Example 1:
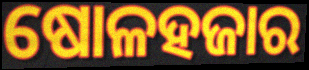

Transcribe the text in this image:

ଷୋଳହଜାର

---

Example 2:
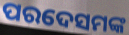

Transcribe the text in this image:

ପରଦେସମଙ୍କ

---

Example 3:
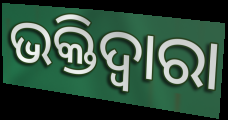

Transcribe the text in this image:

ଭକ୍ତିଦ୍ଵାରା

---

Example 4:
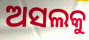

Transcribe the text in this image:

ଅସଲକୁ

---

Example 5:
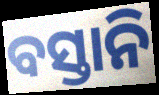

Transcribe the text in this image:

ବସ୍ତାନି